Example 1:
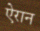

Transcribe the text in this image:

ऐरान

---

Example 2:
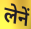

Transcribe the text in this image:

लेनें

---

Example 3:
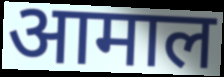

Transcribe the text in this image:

आमाल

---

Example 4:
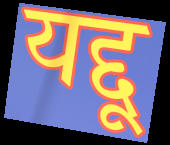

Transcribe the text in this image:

यद्दू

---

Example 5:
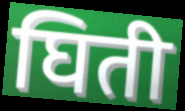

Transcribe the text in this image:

घिती